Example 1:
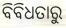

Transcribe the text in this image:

ବିବିଧତାରୁ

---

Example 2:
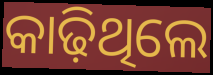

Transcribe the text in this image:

କାଢ଼ିଥିଲେ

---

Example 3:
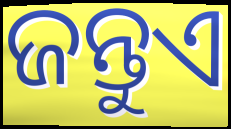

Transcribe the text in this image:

ଜନ୍ତୁଏ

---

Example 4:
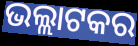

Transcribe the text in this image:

ଭଲ୍ଲାଟକର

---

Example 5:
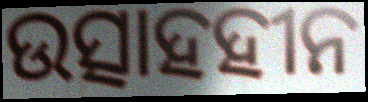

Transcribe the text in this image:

ଉତ୍ସାହହୀନ